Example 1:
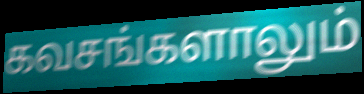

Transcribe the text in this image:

கவசங்களாலும்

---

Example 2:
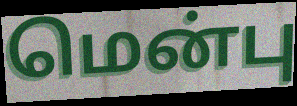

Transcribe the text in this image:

மென்பு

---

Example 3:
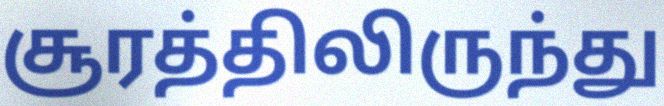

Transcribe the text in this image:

சூரத்திலிருந்து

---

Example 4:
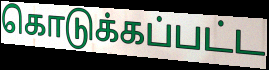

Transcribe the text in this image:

கொடுக்கப்பட்ட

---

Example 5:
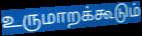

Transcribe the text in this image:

உருமாறக்கூடும்